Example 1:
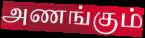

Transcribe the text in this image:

அணங்கும்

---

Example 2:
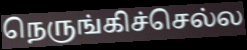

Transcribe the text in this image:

நெருங்கிச்செல்ல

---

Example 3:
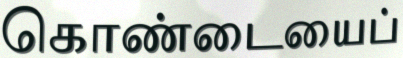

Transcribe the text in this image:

கொண்டையைப்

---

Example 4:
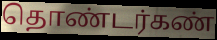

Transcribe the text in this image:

தொண்டர்கண்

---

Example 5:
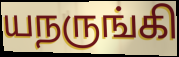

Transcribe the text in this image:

யநருங்கி